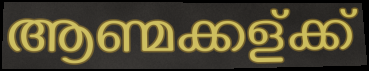
ആണ്മക്കള്ക്ക്